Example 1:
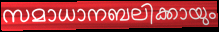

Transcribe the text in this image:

സമാധാനബലിക്കായും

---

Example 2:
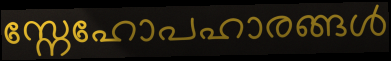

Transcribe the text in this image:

സ്നേഹോപഹാരങ്ങൾ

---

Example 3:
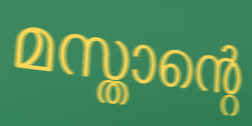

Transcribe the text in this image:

മസ്താന്റെ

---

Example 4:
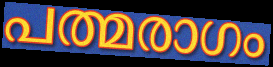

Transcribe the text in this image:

പത്മരാഗം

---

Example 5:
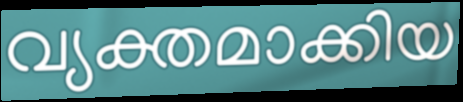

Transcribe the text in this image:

വ്യക്തമാക്കിയ